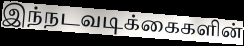
இந்நடவடிக்கைகளின்